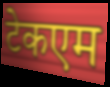
टेकएम